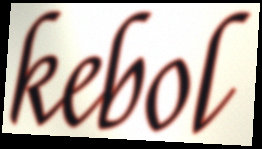
kebol